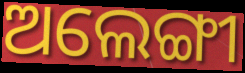
ଅଲେଙ୍ଗୀ